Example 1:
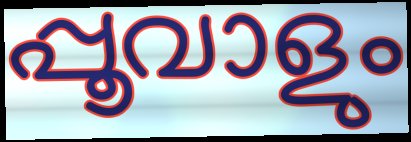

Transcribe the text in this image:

പ്പൂവാളും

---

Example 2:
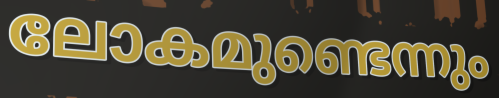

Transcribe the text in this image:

ലോകമുണ്ടെന്നും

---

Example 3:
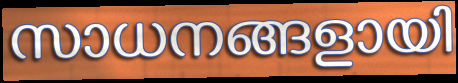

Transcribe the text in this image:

സാധനങ്ങളായി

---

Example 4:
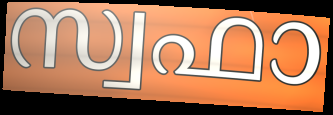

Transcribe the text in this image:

സ്വഫാ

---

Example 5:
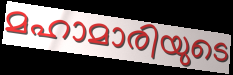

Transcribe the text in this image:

മഹാമാരിയുടെ